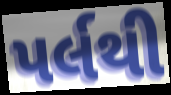
પર્લથી